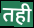
तही